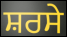
ਸ਼ਰਸੇ